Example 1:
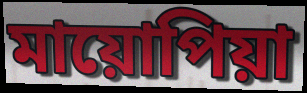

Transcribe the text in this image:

মায়োপিয়া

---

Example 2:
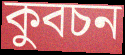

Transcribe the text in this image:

কুবচন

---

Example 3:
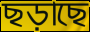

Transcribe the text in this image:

ছড়াছে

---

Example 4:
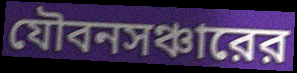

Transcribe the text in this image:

যৌবনসঞ্চারের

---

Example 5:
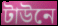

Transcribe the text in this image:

টাউনে